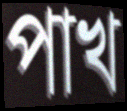
পাখ